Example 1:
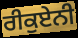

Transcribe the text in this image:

ਰੀਕੁਏਨੀ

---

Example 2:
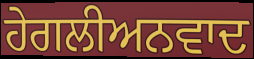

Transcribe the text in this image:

ਹੇਗਲੀਅਨਵਾਦ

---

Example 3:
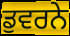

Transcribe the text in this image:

ਡੁਵਰਨੇ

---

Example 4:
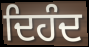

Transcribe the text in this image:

ਦਿਹੰਦ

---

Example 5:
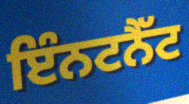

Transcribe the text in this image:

ਇੰਨਟਨੈੱਟ